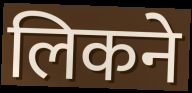
लिकने